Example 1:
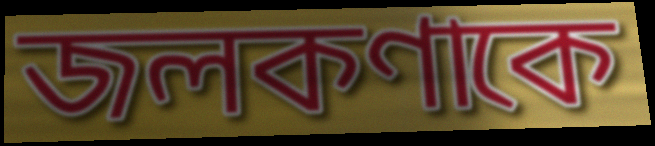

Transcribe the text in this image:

জলকণাকে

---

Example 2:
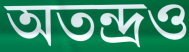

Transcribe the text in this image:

অতন্দ্রও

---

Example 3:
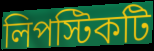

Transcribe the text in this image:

লিপস্টিকটি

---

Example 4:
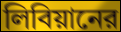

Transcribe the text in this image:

লিবিয়ানের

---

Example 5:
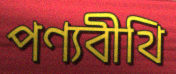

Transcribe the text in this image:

পণ্যবীথি